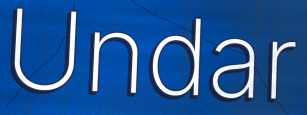
Undar